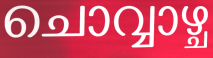
ചൊവ്വാഴ്ച